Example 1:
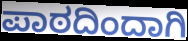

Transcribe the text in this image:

ಪಾಠದಿಂದಾಗಿ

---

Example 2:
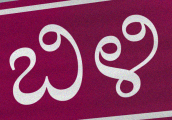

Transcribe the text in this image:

ಬಿಳಿ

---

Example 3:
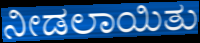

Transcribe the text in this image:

ನೀಡಲಾಯಿತು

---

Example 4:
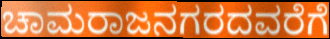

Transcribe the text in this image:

ಚಾಮರಾಜನಗರದವರೆಗೆ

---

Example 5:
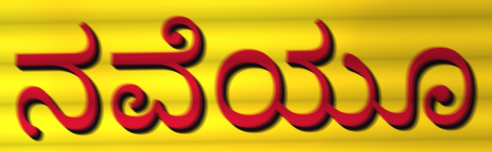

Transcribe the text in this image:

ನವೆಯೂ